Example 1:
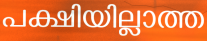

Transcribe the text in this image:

പക്ഷിയില്ലാത്ത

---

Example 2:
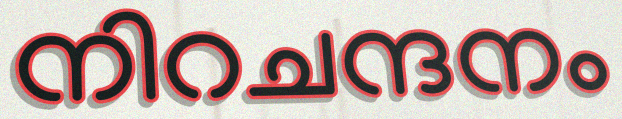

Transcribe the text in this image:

നിറചന്ദനം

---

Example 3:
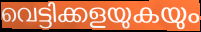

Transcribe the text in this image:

വെട്ടിക്കളയുകയും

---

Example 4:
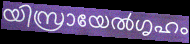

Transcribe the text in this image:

യിസ്രായേൽഗൃഹം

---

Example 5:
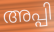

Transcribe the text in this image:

അപ്പി